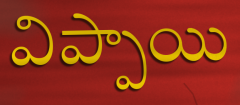
విప్పాయి